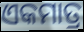
ଏକମାତ୍ର